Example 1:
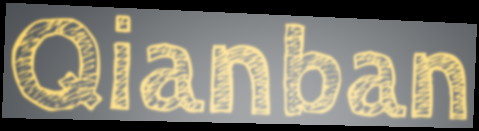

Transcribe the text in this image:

Qianban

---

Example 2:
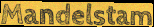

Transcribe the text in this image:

Mandelstam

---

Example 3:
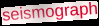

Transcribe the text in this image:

seismograph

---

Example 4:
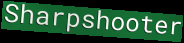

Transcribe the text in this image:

Sharpshooter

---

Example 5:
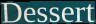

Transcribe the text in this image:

Dessert